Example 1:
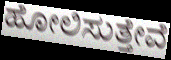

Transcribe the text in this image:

ಹೋಲಿಸುತ್ತೇವೆ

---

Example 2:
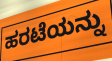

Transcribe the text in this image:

ಹರಟೆಯನ್ನು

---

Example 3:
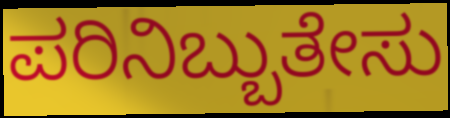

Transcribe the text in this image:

ಪರಿನಿಬ್ಬುತೇಸು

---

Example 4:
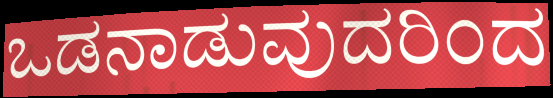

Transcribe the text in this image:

ಒಡನಾಡುವುದರಿಂದ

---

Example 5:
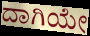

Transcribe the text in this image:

ದಾಗಿಯೇ